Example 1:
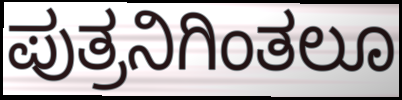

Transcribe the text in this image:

ಪುತ್ರನಿಗಿಂತಲೂ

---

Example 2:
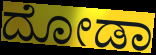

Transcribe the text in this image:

ದೋಡಾ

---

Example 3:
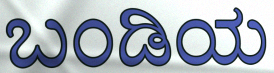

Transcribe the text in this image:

ಬಂಡಿಯ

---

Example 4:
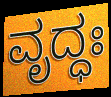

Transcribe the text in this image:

ವೃದ್ಧಃ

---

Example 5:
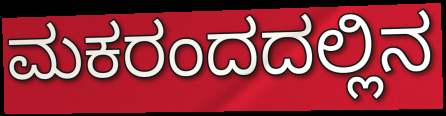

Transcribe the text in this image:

ಮಕರಂದದಲ್ಲಿನ